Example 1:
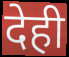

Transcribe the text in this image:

देही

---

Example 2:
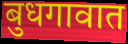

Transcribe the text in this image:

बुधगावात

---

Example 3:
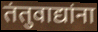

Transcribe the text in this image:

तंतुवाद्यांना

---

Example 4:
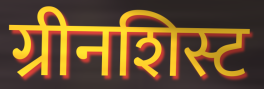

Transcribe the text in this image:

ग्रीनशिस्ट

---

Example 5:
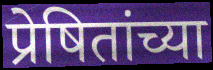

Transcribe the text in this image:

प्रेषितांच्या